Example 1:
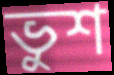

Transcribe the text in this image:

ভুশ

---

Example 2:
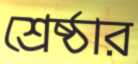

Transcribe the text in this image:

শ্রেষ্ঠার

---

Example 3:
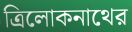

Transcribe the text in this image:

ত্রিলোকনাথের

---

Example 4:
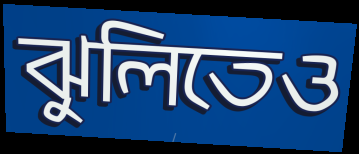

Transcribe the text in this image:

ঝুলিতেও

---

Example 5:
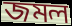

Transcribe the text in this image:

জমল